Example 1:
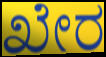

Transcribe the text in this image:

ಖೇರ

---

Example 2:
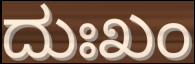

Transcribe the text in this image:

ದುಃಖಂ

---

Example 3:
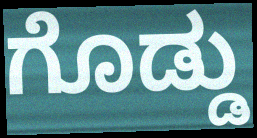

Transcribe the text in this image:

ಗೊಡ್ಡು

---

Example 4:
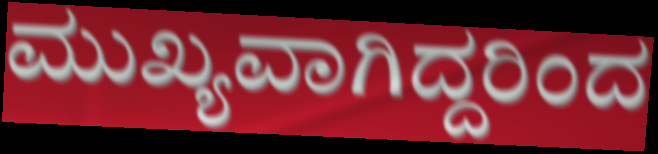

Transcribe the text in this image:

ಮುಖ್ಯವಾಗಿದ್ದರಿಂದ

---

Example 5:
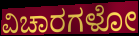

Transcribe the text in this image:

ವಿಚಾರಗಳೋ